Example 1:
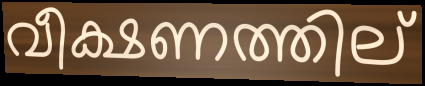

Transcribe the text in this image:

വീക്ഷണത്തില്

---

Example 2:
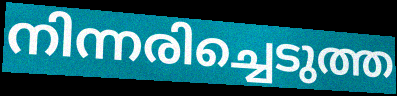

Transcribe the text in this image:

നിന്നരിച്ചെടുത്ത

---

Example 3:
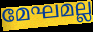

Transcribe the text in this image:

മേഘമല്ല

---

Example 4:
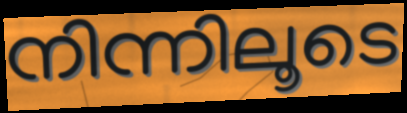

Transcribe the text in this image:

നിന്നിലൂടെ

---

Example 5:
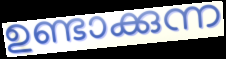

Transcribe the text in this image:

ഉണ്ടാക്കുന്ന